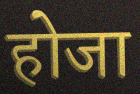
होजा